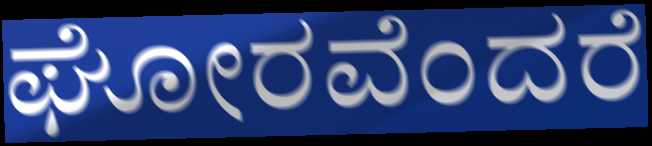
ಘೋರವೆಂದರೆ